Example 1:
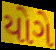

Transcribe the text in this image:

યોગે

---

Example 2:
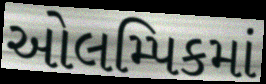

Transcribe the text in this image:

ઓલમ્પિકમાં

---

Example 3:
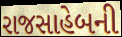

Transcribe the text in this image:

રાજસાહેબની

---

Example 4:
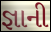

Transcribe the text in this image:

જ્ઞાની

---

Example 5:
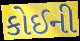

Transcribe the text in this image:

કોઈની